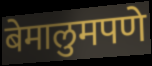
बेमालुमपणे